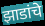
झाडांचे